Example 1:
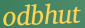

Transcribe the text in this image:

odbhut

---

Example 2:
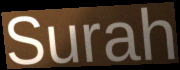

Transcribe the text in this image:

Surah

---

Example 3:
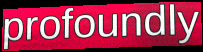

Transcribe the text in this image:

profoundly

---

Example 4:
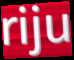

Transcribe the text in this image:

riju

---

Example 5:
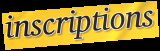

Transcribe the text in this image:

inscriptions